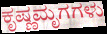
ಕೃಷ್ಣಮೃಗಗಳು